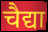
चैद्या